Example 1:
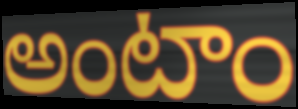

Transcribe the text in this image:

అంటాం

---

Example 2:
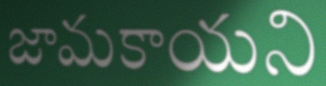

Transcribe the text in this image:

జామకాయని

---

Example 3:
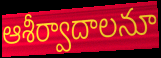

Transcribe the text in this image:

ఆశీర్వాదాలనూ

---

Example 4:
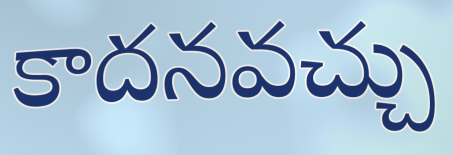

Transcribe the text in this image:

కాదనవచ్చు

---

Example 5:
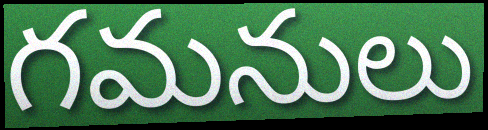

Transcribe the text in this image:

గమనులు